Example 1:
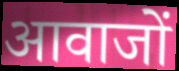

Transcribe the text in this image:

आवाजों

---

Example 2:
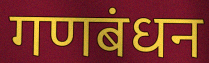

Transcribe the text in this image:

गणबंधन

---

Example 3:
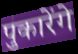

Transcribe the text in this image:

पुकारेंगे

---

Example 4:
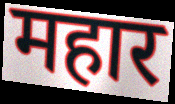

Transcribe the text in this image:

महार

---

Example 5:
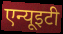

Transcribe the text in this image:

एन्यूइटी